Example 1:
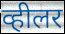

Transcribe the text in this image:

व्हीलर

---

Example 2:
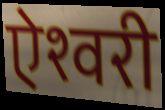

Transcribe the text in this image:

ऐश्वरी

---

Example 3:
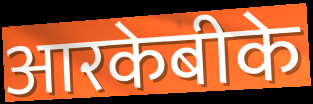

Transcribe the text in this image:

आरकेबीके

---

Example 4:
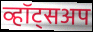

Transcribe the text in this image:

व्हॉट्सअप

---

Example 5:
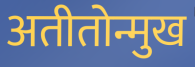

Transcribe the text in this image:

अतीतोन्मुख